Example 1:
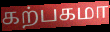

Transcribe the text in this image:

கற்பகமா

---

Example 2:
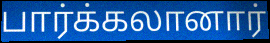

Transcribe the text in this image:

பார்க்கலானார்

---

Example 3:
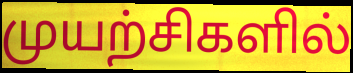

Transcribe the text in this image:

முயற்சிகளில்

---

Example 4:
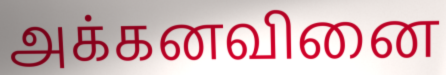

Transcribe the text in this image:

அக்கனவினை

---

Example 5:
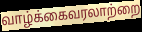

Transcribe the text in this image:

வாழ்க்கைவரலாற்றை